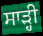
ਸਾੜ੍ਹੀ